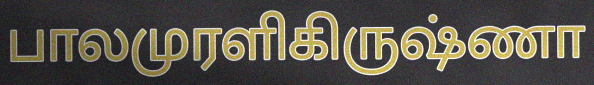
பாலமுரளிகிருஷ்ணா